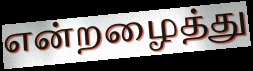
என்றழைத்து